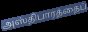
அஸ்திபாரத்தைப்